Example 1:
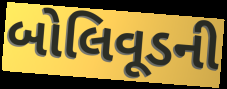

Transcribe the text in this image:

બોલિવૂડની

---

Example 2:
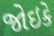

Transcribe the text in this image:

જોઇકે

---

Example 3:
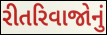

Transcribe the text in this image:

રીતરિવાજોનું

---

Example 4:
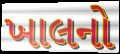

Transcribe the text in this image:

ખાલનો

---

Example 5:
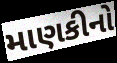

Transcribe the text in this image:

માણકીનો